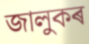
জালুকৰ